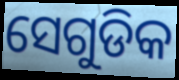
ସେଗୁଡିକ